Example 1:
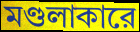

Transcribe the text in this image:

মণ্ডলাকারে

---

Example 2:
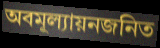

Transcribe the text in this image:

অবমূল্যায়নজনিত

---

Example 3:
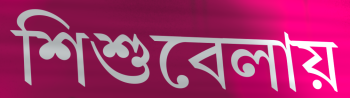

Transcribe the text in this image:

শিশুবেলায়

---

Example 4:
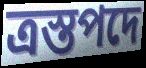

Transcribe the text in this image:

ত্রস্তপদে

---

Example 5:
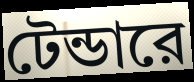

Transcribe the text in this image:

টেন্ডারে